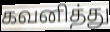
கவனித்து